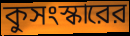
কুসংস্কারের